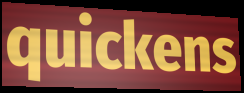
quickens